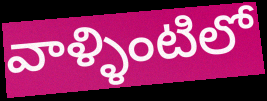
వాళ్ళింటిలో